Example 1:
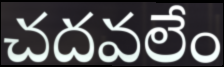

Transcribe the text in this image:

చదవలేం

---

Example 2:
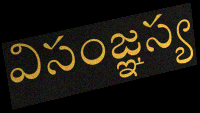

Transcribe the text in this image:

విసంజ్ఞస్య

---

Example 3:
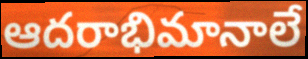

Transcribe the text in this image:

ఆదరాభిమానాలే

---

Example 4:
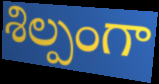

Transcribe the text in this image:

శిల్పంగా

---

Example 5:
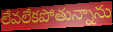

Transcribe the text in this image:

లేవలేకపోతున్నాను